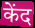
केंद